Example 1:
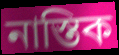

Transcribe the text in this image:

নাস্তিক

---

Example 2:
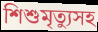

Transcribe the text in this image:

শিশুমৃত্যুসহ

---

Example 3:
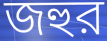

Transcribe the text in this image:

জহুর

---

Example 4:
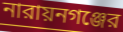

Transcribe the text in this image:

নারায়নগঞ্জের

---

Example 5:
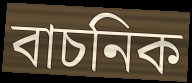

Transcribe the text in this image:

বাচনিক